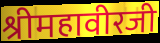
श्रीमहावीरजी